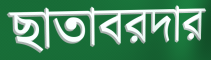
ছাতাবরদার